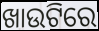
ଖାଉଟିରେ